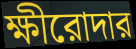
ক্ষীরোদার